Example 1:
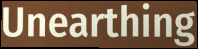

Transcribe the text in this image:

Unearthing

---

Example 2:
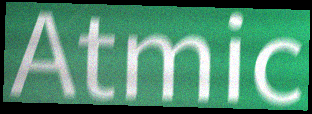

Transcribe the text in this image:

Atmic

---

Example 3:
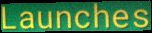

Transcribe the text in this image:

Launches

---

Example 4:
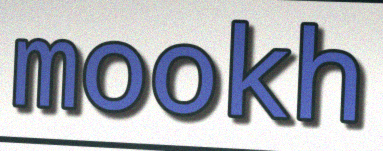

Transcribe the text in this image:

mookh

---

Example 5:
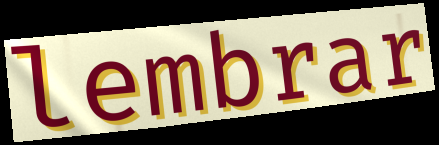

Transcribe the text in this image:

lembrar